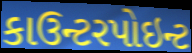
કાઉન્ટરપોઇન્ટ